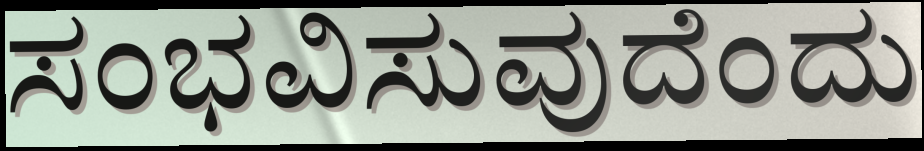
ಸಂಭವಿಸುವುದೆಂದು